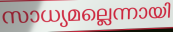
സാധ്യമല്ലെന്നായി